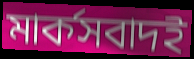
মার্কসবাদই